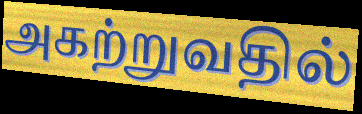
அகற்றுவதில்